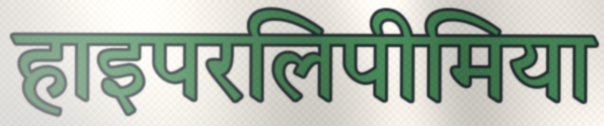
हाइपरलिपीमिया